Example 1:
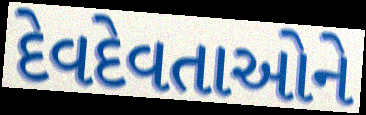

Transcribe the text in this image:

દેવદેવતાઓને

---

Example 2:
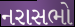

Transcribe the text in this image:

નરાસભો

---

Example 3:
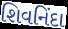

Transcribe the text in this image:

શિવનિંદા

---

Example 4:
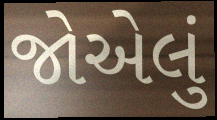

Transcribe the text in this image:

જોએલું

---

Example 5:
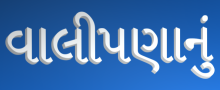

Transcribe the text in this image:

વાલીપણાનું